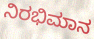
ನಿರಭಿಮಾನ